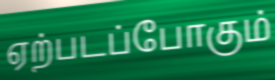
ஏற்படப்போகும்